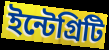
ইন্টেগ্রিটি